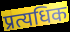
प्रत्यधिक